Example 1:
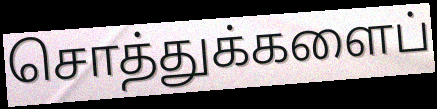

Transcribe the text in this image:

சொத்துக்களைப்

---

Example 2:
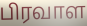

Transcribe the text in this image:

பிரவாள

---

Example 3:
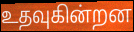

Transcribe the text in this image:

உதவுகின்றன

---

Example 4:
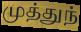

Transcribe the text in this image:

முத்துந்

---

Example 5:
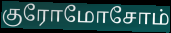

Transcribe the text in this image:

குரோமோசோம்